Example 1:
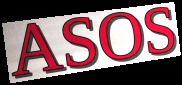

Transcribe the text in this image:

ASOS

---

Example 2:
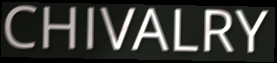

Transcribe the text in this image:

CHIVALRY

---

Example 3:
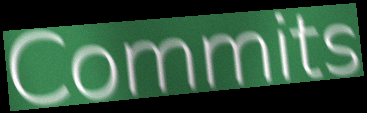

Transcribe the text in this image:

Commits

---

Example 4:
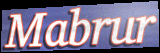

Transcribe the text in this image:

Mabrur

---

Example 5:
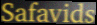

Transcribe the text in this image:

Safavids